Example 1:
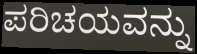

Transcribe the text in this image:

ಪರಿಚಯವನ್ನು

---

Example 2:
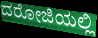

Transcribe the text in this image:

ದರೋಜಿಯಲ್ಲಿ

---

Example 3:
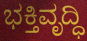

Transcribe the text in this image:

ಭಕ್ತಿವೃದ್ಧಿ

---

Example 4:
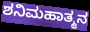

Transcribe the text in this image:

ಶನಿಮಹಾತ್ಮನ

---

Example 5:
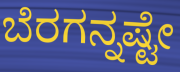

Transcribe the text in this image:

ಬೆರಗನ್ನಷ್ಟೇ